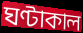
ঘণ্টাকাল